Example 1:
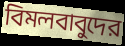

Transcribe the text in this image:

বিমলবাবুদের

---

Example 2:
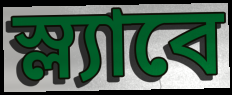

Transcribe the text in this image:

স্ল্যাবে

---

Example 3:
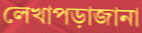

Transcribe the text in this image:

লেখাপড়াজানা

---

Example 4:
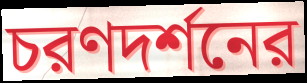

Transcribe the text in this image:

চরণদর্শনের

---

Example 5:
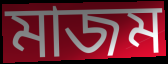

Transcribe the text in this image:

মাজম